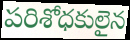
పరిశోధకులైన